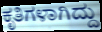
ಕೃತಿಗಳಾಗಿದ್ದು